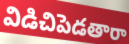
విడిచిపెడతారా